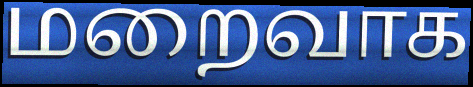
மறைவாக